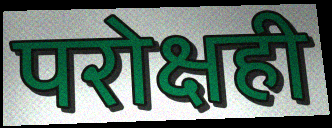
परोक्षही